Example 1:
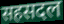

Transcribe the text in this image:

सहसदल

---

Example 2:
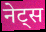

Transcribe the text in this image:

नेट्स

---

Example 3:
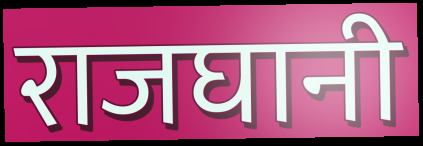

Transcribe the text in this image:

राजघानी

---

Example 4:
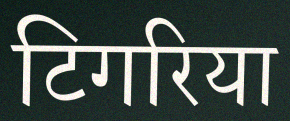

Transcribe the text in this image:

टिगरिया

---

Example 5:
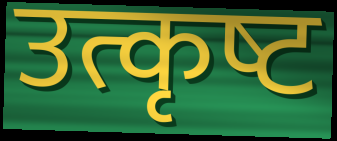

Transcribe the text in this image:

उत्‍कृष्‍ट